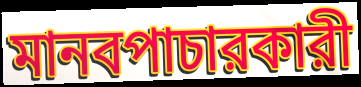
মানবপাচারকারী